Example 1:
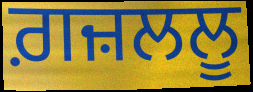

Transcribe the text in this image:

ਗ਼ਜ਼ਲਲੂ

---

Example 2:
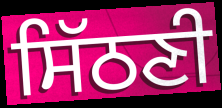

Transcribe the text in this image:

ਸਿੱਠਣੀ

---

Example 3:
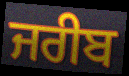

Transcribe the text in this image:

ਜਰੀਬ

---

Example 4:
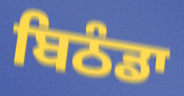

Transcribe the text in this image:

ਬਿਠੰਡਾ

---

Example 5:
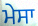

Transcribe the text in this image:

ਮੇਸਾ